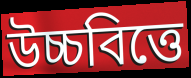
উচ্চবিত্তে